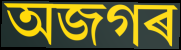
অজগৰ